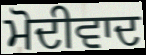
ਮੋਦੀਵਾਦ